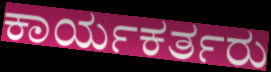
ಕಾರ್ಯಕರ್ತರು